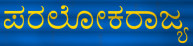
ಪರಲೋಕರಾಜ್ಯ